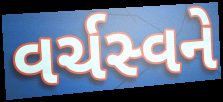
વર્ચસ્વને